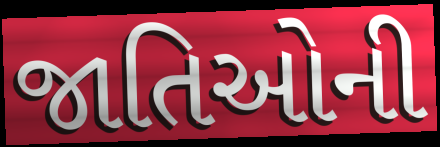
જાતિઓની